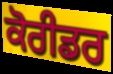
ਕੋਰੀਡਰ